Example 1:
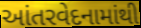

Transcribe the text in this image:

આંતરવેદનામાંથી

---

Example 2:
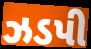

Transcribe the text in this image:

ઝડપી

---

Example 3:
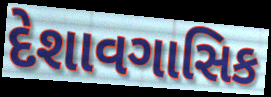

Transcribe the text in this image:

દેશાવગાસિક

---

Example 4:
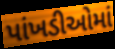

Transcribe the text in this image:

પાંખડીઓમાં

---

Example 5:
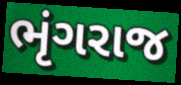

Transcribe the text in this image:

ભૃંગરાજ